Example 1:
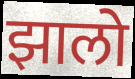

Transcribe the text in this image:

झालो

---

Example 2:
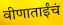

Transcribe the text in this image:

वीणाताईंचं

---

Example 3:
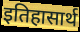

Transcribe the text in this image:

इतिहासार्थ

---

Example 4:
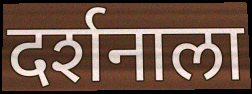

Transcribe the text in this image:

दर्शनाला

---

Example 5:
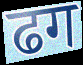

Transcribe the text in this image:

ढग